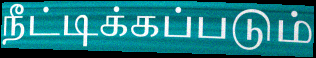
நீட்டிக்கப்படும்